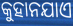
କୁହାନଯାଏ